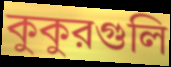
কুকুরগুলি